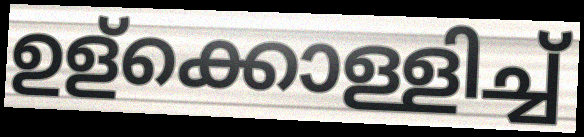
ഉള്ക്കൊള്ളിച്ച്